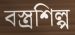
বস্ত্রশিল্প